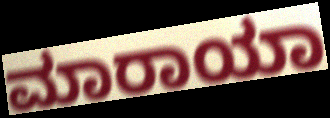
ಮಾರಾಯಾ